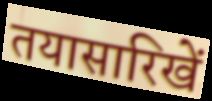
तयासारिखें